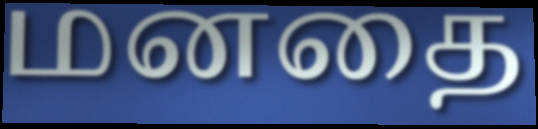
மனதை